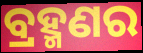
ବ୍ରହ୍ମଣର